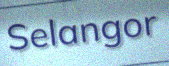
Selangor